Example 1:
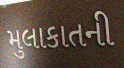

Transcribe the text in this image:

મુલાકાતની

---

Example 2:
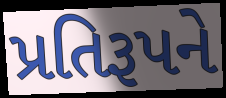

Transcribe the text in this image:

પ્રતિરૂપને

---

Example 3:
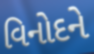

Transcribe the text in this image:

વિનોદને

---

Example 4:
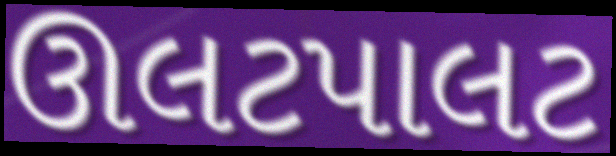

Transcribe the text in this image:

ઊલટપાલટ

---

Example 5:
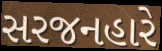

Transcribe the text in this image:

સરજનહારે